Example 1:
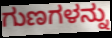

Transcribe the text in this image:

ಗುಣಗಳನ್ನು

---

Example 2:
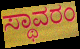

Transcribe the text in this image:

ಸ್ಥಾವರಂ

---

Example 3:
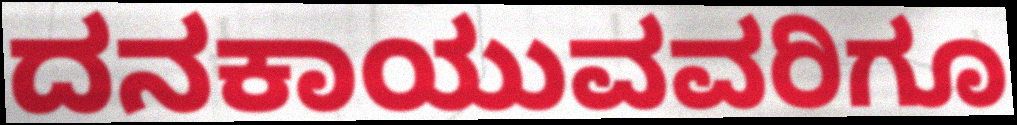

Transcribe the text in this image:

ದನಕಾಯುವವರಿಗೂ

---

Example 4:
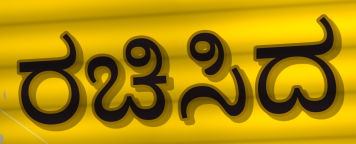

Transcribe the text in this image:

ರಚಿಸಿದ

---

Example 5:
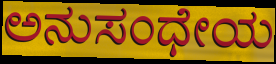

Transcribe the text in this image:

ಅನುಸಂಧೇಯ